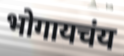
भोगायचंय